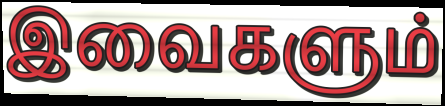
இவைகளும்